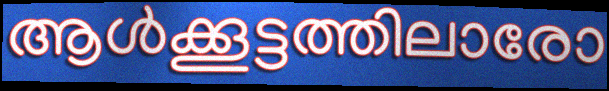
ആൾക്കൂട്ടത്തിലാരോ